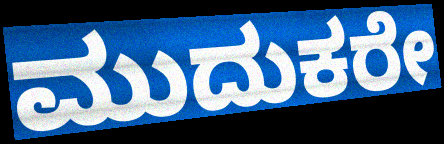
ಮುದುಕರೇ